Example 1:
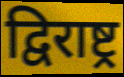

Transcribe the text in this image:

द्विराष्ट्र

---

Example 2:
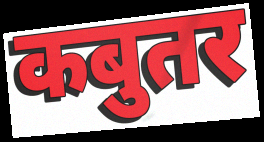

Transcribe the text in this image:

कबुतर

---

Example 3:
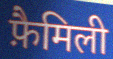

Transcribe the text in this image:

फ़ैमिली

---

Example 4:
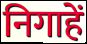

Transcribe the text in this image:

निगाहें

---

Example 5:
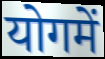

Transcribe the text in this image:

योगमें